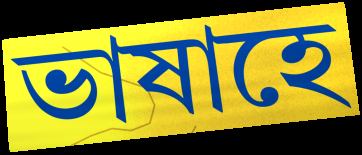
ভাষাহে